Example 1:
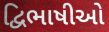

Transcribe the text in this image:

દ્વિભાષીઓ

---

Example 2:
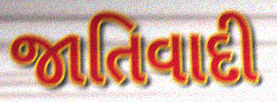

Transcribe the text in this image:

જાતિવાદી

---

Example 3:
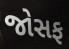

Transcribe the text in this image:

જોસફ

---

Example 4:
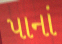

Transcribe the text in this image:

પાનાં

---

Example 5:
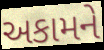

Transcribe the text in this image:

અકામને